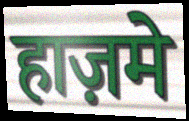
हाज़मे